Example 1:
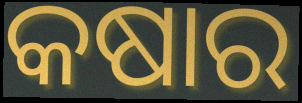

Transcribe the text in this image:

କଷାର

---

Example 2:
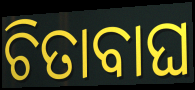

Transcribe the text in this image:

ଚିତାବାଘ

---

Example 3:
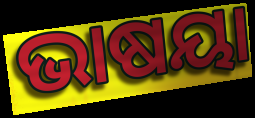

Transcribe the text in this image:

ଭାଷୟା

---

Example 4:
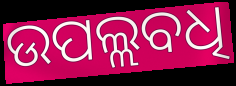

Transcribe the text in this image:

ଉପଲ୍ଲବଧି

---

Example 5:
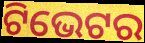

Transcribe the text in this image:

ଟିଭେଟର